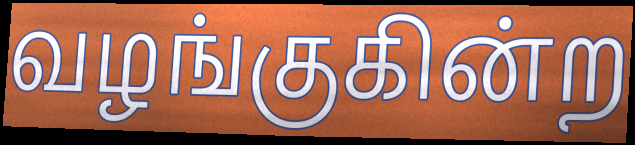
வழங்குகின்ற